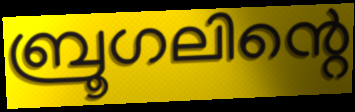
ബ്രൂഗലിന്റെ